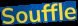
Souffle